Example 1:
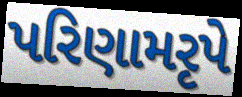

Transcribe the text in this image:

પરિણામરૃપે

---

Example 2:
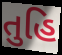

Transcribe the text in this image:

તુહિ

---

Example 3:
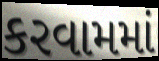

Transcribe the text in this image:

કરવામમાં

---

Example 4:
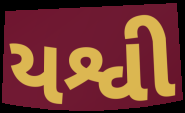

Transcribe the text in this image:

યશ્વી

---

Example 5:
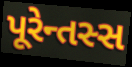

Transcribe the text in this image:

પૂરેન્તસ્સ